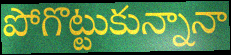
పోగొట్టుకున్నానా